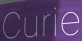
Curie